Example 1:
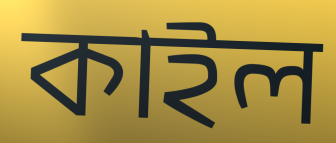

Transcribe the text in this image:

কাইল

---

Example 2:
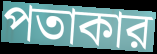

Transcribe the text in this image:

পতাকার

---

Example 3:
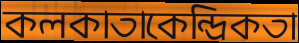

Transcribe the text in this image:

কলকাতাকেন্দ্রিকতা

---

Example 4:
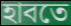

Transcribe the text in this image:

হাবতে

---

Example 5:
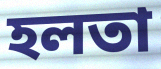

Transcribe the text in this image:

হলতা